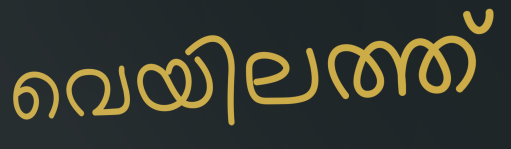
വെയിലത്ത്